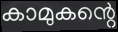
കാമുകന്റെ